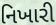
નિખારી